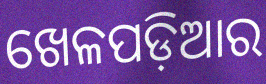
ଖେଳପଡ଼ିଆର